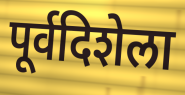
पूर्वदिशेला